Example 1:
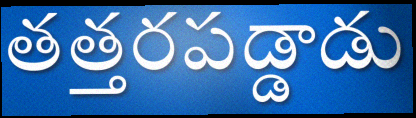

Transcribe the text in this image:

తత్తరపడ్డాడు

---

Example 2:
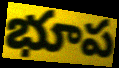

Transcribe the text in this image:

భూప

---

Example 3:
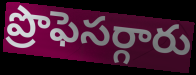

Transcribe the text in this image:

ప్రొఫెసర్గారు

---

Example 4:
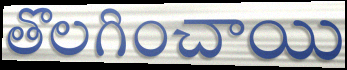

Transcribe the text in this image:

తొలగించాయి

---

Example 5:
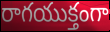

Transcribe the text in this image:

రాగయుక్తంగా